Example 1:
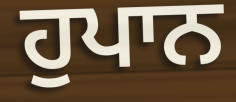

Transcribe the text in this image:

ਹੁਪਾਨ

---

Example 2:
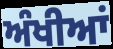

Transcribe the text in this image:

ਅੰਖੀਆਂ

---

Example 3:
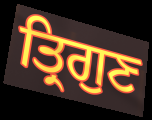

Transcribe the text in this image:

ਤ੍ਰਿਗੁਣ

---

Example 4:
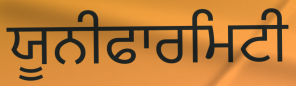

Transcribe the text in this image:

ਯੂਨੀਫਾਰਮਿਟੀ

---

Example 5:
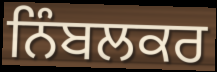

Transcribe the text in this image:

ਨਿੰਬਲਕਰ